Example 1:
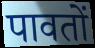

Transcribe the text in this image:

पावतों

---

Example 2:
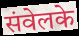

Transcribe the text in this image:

संवेलके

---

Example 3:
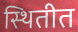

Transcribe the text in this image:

स्थितीत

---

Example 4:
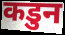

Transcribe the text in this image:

कडुन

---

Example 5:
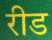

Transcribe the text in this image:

रीड